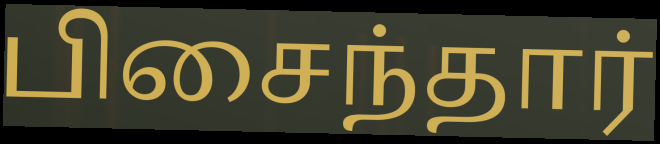
பிசைந்தார்